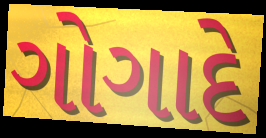
ગોગાદે